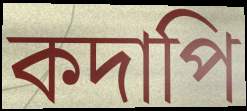
কদাপি